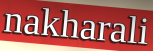
nakharali